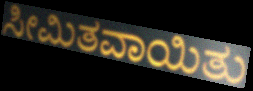
ಸೀಮಿತವಾಯಿತು